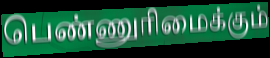
பெண்ணுரிமைக்கும்